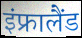
इंफ्रालैंड